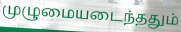
முழுமையடைந்ததும்